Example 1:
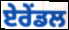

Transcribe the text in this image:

ਏਰੇਂਡਲ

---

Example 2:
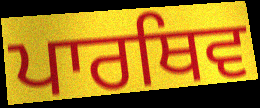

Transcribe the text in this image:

ਪਾਰਥਿਵ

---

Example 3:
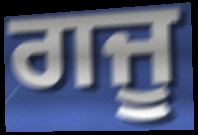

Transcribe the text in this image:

ਗਜੂ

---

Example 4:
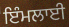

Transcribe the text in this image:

ਇੰਮਲਾਈ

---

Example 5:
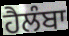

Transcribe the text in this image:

ਹੈਲੰਬਾ